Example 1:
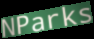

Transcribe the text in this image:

NParks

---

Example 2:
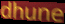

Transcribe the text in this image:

dhune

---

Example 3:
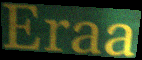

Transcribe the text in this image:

Eraa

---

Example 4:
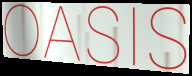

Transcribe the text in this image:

OASIS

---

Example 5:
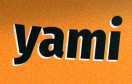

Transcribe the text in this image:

yami